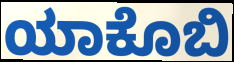
ಯಾಕೊಬಿ